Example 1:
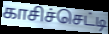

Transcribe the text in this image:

காசிச்செட்டி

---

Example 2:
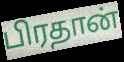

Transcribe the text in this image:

பிரதான்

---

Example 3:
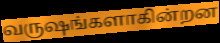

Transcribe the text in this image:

வருஷங்களாகின்றன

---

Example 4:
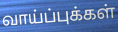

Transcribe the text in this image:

வாய்ப்புக்கள்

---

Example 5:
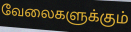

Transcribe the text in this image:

வேலைகளுக்கும்